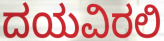
ದಯವಿರಲಿ